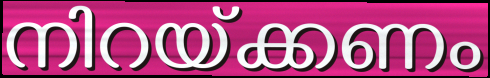
നിറയ്‌ക്കണം